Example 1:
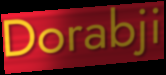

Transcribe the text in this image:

Dorabji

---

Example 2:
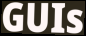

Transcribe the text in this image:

GUIs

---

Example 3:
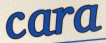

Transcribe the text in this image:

cara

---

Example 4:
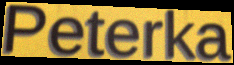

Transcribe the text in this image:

Peterka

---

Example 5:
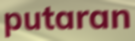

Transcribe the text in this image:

putaran